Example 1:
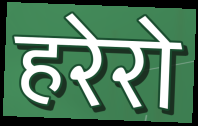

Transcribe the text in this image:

हरेरो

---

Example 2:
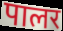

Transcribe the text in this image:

पालर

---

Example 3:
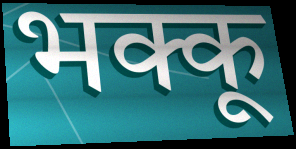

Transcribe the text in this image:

भक्कू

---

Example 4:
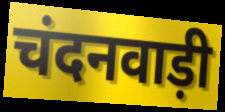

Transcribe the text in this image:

चंदनवाड़ी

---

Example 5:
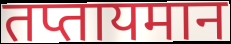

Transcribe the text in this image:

तप्तायमान